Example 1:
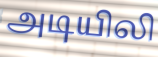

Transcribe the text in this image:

அடியிலி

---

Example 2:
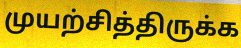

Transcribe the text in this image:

முயற்சித்திருக்க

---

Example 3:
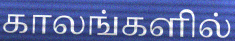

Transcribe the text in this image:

காலங்களில்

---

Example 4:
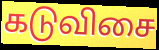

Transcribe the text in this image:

கடுவிசை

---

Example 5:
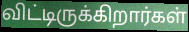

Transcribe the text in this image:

விட்டிருக்கிறார்கள்